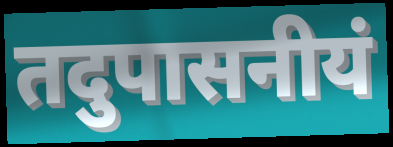
तदुपासनीयं